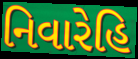
નિવારેહિ